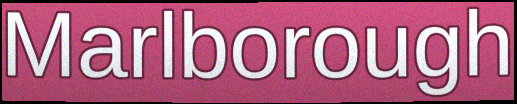
Marlborough